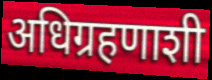
अधिग्रहणाशी